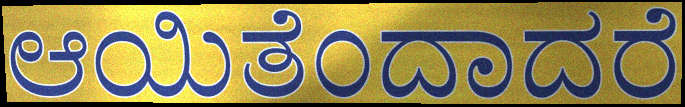
ಆಯಿತೆಂದಾದರೆ